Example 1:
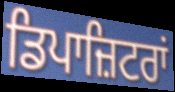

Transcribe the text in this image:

ਡਿਪਾਜ਼ਿਟਰਾਂ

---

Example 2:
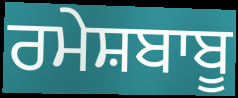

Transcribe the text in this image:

ਰਮੇਸ਼ਬਾਬੂ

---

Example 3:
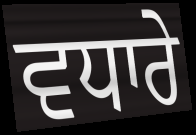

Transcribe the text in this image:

ਵਧਾਰੇ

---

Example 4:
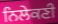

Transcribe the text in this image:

ਨਿਲੇਕਣੀ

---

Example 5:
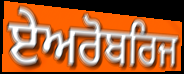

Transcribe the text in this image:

ਏਅਰੋਬਰਿਜ